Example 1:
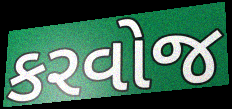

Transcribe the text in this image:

કરવોજ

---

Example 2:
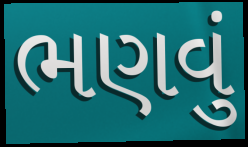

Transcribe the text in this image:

ભણવું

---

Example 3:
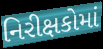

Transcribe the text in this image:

નિરીક્ષકોમાં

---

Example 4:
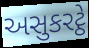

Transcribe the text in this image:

અસુકરટ્ઠે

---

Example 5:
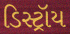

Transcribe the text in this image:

ડિસ્ટ્રૉય